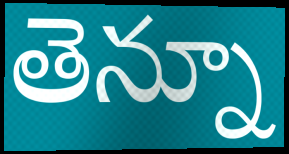
తెన్నూ